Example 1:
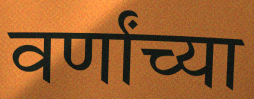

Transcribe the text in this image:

वर्णांच्या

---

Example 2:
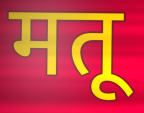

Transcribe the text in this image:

मतू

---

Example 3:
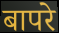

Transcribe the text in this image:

बापरे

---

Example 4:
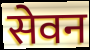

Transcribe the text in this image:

सेवन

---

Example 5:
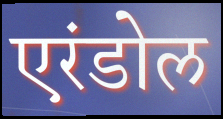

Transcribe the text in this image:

एरंडोल